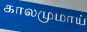
காலமுமாய்